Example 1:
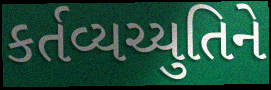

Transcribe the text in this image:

કર્તવ્યચ્યુતિને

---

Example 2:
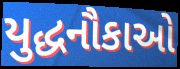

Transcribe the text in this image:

યુદ્ધનૌકાઓ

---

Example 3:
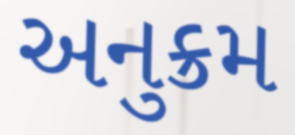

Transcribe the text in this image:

અનુક્રમ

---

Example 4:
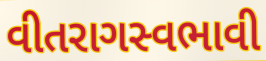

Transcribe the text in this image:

વીતરાગસ્વભાવી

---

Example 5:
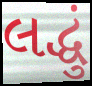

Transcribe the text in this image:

લદ્ધું